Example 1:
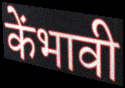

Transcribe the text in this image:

केंभावी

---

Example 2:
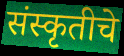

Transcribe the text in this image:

संस्कृतीचे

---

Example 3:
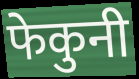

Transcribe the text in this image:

फेकुनी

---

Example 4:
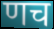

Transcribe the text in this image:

णच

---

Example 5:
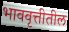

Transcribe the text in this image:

भाववृत्तीतील